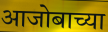
आजोबाच्या